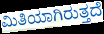
ಮಿತಿಯಾಗಿರುತ್ತದೆ